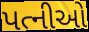
પત્નીઓ